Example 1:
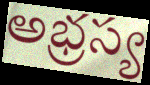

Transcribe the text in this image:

అభ్రస్య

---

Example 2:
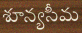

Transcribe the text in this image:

శూన్యసీమ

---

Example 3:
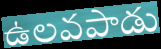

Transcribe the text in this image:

ఉలవపాడు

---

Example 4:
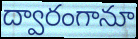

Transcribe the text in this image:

ద్వారంగానూ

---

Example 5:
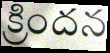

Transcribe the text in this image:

క్రిందన